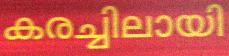
കരച്ചിലായി